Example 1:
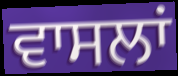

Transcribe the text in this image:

ਵਾਸਲਾਂ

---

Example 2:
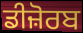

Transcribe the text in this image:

ਡੀਜ਼ੋਰਬ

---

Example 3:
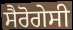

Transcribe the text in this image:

ਸੈਰੋਗੇਸੀ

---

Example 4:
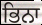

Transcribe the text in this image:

ਭਿਨਾ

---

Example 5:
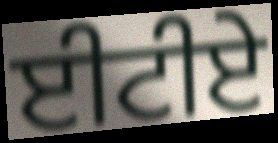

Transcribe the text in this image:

ਈਟੀਏ